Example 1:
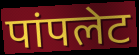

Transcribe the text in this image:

पांपलेट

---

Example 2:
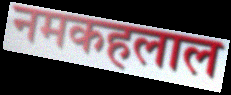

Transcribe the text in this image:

नमकहलाल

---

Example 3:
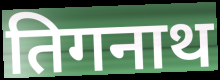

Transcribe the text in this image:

तिगनाथ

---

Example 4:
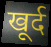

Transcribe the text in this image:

खूर्द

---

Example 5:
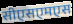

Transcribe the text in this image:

सीएसएमएस